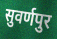
सुवर्णपुर